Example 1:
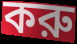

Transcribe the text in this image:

করু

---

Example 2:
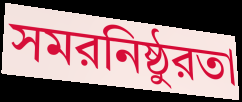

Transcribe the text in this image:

সমরনিষ্ঠুরতা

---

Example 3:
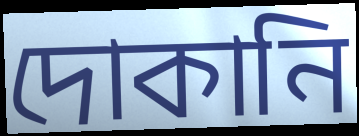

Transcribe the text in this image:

দোকানি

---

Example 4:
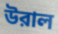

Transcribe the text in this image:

উরাল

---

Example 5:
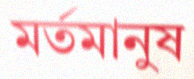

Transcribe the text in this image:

মর্তমানুষ